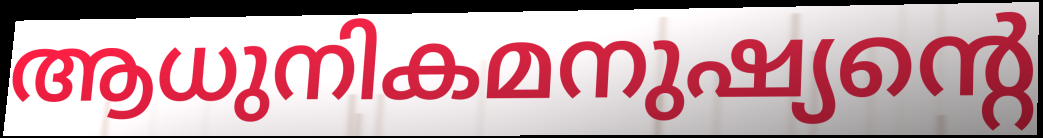
ആധുനികമനുഷ്യന്റെ